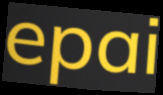
epai